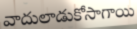
వాదులాడుకోసాగాయి